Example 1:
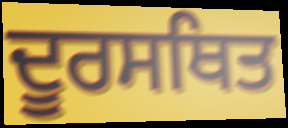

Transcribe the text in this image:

ਦੂਰਸਥਿਤ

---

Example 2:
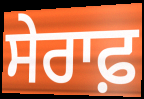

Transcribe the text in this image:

ਸੇਰਾਫ਼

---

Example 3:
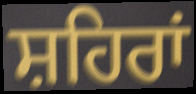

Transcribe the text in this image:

ਸ਼ਹਿਰਾਂ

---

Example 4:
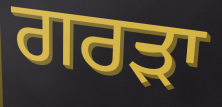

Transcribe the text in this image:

ਗਰੜਾ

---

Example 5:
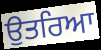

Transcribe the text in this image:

ਉਤਰਿਆ